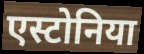
एस्टोनिया